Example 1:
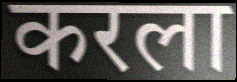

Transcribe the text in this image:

करला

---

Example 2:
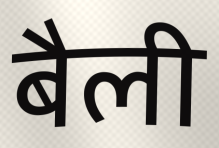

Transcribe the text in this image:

बैली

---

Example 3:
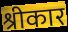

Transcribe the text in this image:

श्रीकार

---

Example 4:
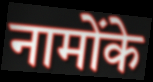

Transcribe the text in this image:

नामोंके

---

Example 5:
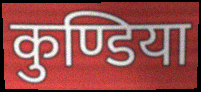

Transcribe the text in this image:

कुण्डिया